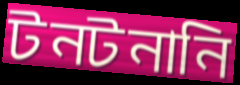
টনটনানি